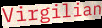
Virgilian